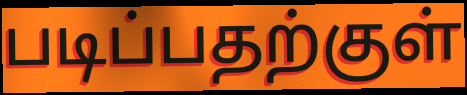
படிப்பதற்குள்